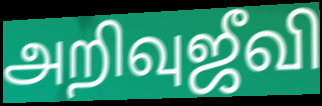
அறிவுஜீவி